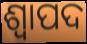
ଶ୍ୱାପଦ